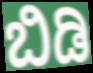
ಬಿಡಿ